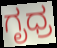
ಗೃಧ್ರ